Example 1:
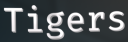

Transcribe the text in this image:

Tigers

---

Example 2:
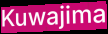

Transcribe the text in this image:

Kuwajima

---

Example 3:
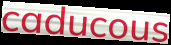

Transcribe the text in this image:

caducous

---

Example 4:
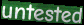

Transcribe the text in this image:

untested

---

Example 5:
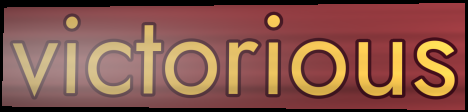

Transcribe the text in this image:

victorious